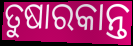
ତୁଷାରକାନ୍ତ